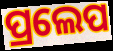
ପ୍ରଲେପ